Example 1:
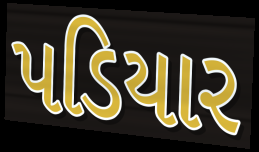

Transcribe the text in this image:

પડિયાર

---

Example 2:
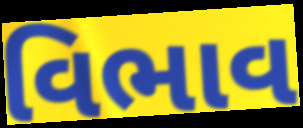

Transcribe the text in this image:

વિભાવ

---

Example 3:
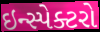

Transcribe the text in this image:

ઇન્સ્પેક્ટરો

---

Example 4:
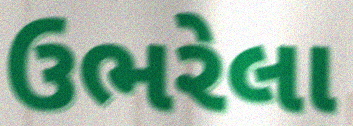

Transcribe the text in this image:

ઉભરેલા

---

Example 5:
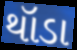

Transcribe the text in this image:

થૉડા